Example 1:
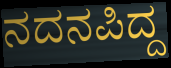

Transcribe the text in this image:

ನದನಪಿದ್ದ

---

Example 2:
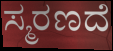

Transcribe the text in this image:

ಸ್ಮರಣದೆ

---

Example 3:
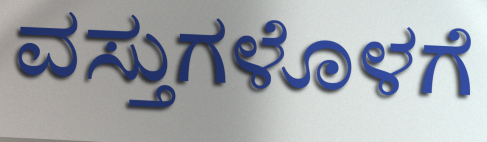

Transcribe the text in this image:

ವಸ್ತುಗಳೊಳಗೆ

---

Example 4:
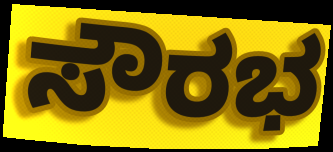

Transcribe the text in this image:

ಸೌರಭ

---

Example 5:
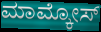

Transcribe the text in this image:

ಮಾಮ್ಕೋಸ್